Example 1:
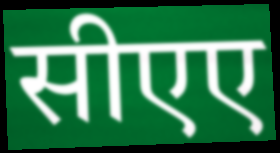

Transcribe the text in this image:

सीएए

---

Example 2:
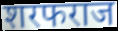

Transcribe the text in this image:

शरफराज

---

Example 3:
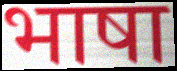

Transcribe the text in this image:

भाषा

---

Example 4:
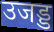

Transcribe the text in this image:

उजड्ड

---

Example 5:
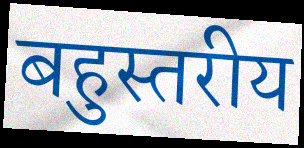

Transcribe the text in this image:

बहुस्तरीय